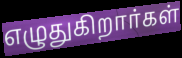
எழுதுகிறார்கள்